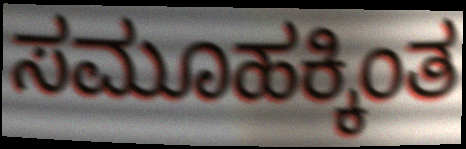
ಸಮೂಹಕ್ಕಿಂತ